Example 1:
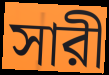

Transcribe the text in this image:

সারী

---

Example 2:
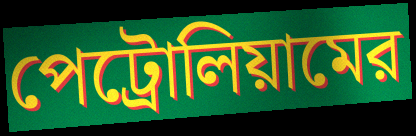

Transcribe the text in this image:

পেট্রোলিয়ামের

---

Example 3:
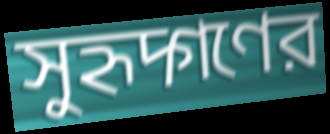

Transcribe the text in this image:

সুহৃদ্গণের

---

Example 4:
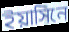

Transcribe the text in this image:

ইয়াসিনে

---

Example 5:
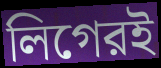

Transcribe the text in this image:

লিগেরই